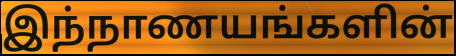
இந்நாணயங்களின்